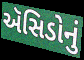
ઍસિડોનું